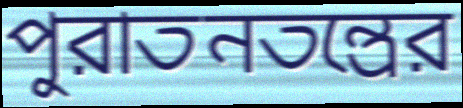
পুরাতনতন্ত্রের